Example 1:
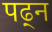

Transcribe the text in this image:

पढ्न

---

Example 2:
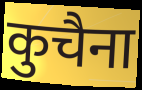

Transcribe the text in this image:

कुचैना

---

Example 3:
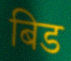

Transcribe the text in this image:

बिड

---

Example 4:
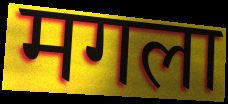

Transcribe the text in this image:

मगला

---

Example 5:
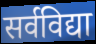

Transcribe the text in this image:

सर्वविद्या